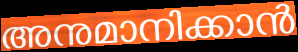
അനുമാനിക്കാൻ